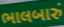
ભાલબારું